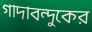
গাদাবন্দুকের